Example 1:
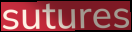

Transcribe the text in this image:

sutures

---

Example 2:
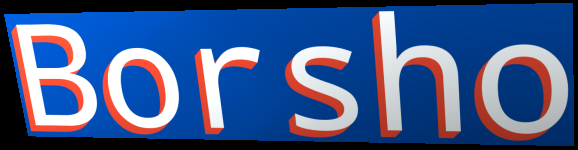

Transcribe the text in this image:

Borsho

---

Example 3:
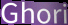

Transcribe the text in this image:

Ghori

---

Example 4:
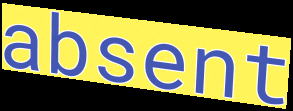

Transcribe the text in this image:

absent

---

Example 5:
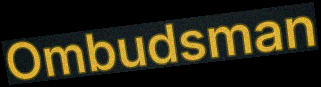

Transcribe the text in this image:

Ombudsman